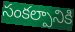
సంకల్పానికి